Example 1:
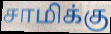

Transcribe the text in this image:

சாமிக்கு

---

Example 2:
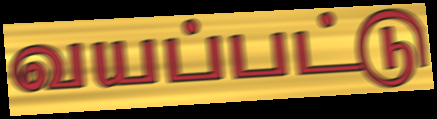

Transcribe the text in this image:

வயப்பட்டு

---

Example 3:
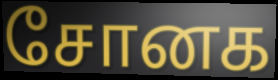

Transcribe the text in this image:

சோனக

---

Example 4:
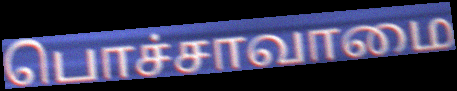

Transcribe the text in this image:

பொச்சாவாமை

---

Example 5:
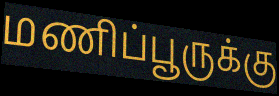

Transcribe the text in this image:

மணிப்பூருக்கு